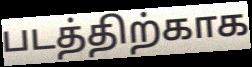
படத்திற்காக